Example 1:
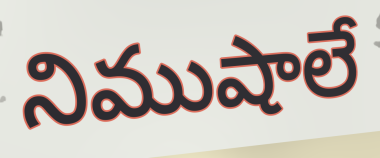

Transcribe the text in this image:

నిముషాలే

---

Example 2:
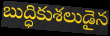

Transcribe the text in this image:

బుద్ధికుశలుడైన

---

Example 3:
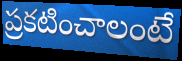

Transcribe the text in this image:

ప్రకటించాలంటే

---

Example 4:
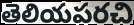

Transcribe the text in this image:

తెలియపరచి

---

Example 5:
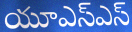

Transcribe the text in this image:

యూఎస్ఎస్